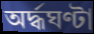
অর্দ্ধঘণ্টা